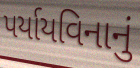
પર્યાયવિનાનું